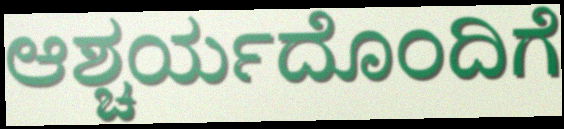
ಆಶ್ಚರ್ಯದೊಂದಿಗೆ